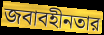
জবাবহীনতার